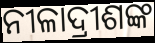
ନୀଳାଦ୍ରୀଶଙ୍କ